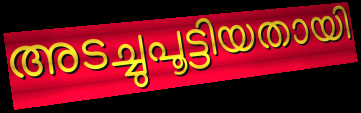
അടച്ചുപൂട്ടിയതായി